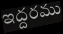
ఇద్దరము